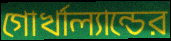
গোর্খাল্যান্ডের